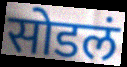
सोडलं